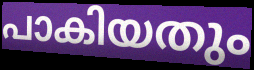
പാകിയതും